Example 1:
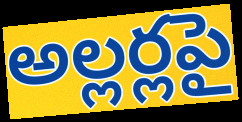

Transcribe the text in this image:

అల్లర్లపై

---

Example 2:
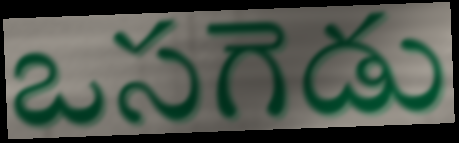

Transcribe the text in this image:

ఒసగెడు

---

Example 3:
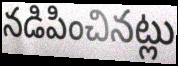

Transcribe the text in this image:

నడిపించినట్లు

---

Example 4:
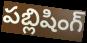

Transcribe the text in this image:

పబ్లిషింగ్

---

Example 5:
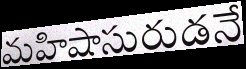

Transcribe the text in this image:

మహిషాసురుడనే